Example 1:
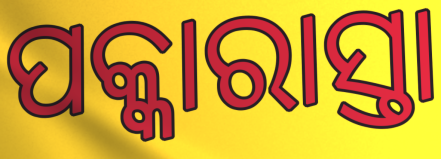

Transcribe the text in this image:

ପକ୍କାରାସ୍ତା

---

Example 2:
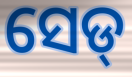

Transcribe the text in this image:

ସେଡ୍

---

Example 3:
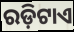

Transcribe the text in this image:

ରଡ଼ିଟାଏ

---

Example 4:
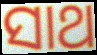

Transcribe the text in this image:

ସାଥ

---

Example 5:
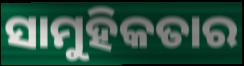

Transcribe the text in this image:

ସାମୁହିକତାର